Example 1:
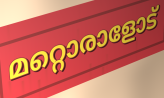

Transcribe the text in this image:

മറ്റൊരാളോട്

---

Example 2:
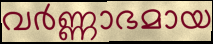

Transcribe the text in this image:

വർണ്ണാഭമായ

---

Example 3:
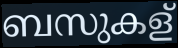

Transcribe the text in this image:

ബസുകള്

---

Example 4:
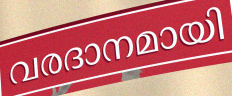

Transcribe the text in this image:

വരദാനമായി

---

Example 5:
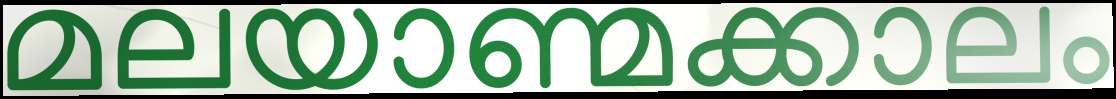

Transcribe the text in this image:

മലയാണ്മക്കാലം